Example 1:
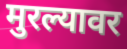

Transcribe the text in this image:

मुरल्यावर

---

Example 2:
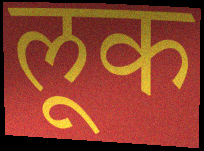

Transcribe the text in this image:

लूक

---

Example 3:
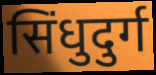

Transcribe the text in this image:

सिंधुदुर्ग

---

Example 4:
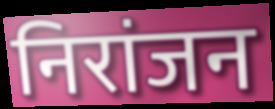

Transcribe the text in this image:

निरांजन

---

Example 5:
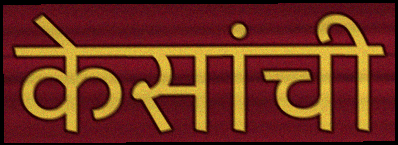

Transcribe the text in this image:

केसांची